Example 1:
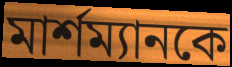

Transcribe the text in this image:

মার্শম্যানকে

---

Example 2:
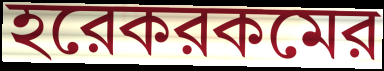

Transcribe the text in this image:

হরেকরকমের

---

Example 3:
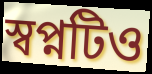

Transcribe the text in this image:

স্বপ্নটিও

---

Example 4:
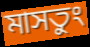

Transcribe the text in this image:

মাসতুং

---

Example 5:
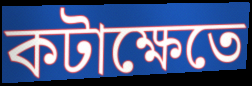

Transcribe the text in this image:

কটাক্ষেতে